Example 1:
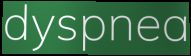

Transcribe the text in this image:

dyspnea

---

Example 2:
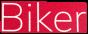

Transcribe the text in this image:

Biker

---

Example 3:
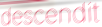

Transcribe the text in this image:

descendit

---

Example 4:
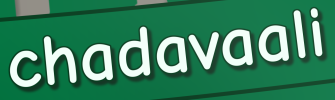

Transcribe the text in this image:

chadavaali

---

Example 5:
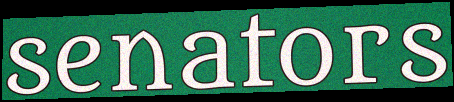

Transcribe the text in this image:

senators